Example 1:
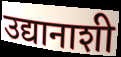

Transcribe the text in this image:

उद्यानाशी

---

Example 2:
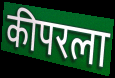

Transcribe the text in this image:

कीपरला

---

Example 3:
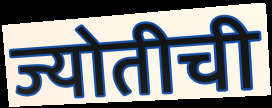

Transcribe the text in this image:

ज्योतीची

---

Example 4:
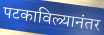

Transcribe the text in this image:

पटकाविल्यानंतर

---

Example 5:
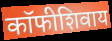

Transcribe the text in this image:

कॉफीशिवाय